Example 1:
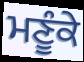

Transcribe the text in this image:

ਮਣੂੰਕੇ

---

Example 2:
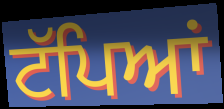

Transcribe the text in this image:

ਟੱਪਿਆਂ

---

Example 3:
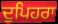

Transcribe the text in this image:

ਦੁਪਿਹਰਾ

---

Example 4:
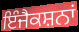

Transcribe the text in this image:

ਇੰਜੈਕਸ਼ਨਾਂ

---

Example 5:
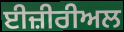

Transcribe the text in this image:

ਈਜ਼ੀਰੀਅਲ